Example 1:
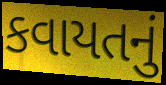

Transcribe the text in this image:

કવાયતનું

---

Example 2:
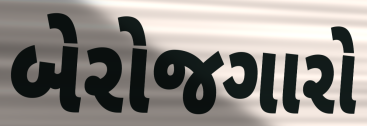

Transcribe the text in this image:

બેરોજગારો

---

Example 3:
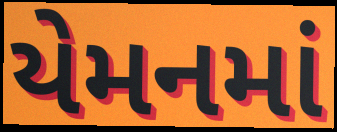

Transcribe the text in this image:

યેમનમાં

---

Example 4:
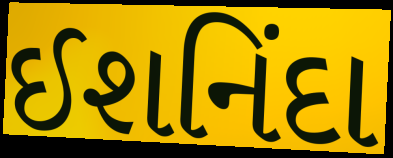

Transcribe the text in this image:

ઈશનિંદા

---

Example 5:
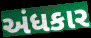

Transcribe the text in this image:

અંધકાર